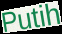
Putih